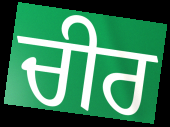
ਚੀਰ